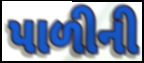
પાળીની